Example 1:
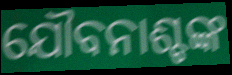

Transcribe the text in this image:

ଯୌବନାଶ୍ଚଙ୍କ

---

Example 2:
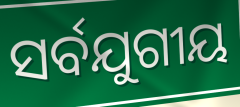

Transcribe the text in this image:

ସର୍ବଯୁଗୀୟ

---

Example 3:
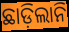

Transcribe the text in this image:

ଛାଡ଼ିଲାନି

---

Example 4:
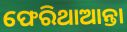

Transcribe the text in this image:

ଫେରିଥାଆନ୍ତା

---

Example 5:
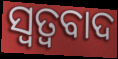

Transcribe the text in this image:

ସ୍ୱତ୍ୱବାଦ